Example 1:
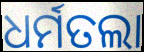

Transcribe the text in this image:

ଧର୍ମତଲା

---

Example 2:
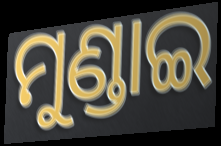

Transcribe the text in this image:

ମୁଣ୍ଡାଇ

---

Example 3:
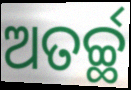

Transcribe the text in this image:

ଅତର୍ଚ୍ଛ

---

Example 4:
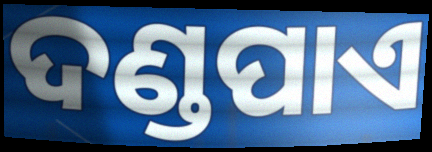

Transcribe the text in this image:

ଦଣ୍ଡପାଏ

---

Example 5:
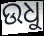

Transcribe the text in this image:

ଉଧୁ